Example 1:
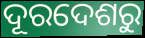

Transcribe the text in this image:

ଦୂରଦେଶରୁ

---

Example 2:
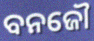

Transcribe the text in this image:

ବନଜୌ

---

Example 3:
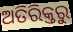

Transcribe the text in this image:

ଅତିରିକ୍ତରୁ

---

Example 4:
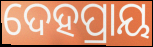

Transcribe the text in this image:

ଦେହପ୍ରାୟ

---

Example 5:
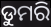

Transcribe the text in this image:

ଡୁମରି